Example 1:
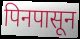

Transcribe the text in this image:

पिनपासून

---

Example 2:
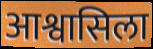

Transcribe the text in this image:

आश्वासिला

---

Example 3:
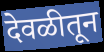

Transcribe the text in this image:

देवळीतून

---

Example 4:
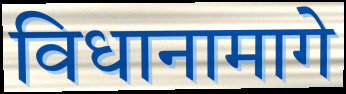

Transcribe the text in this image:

विधानामागे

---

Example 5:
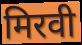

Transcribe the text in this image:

मिरवी